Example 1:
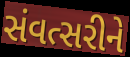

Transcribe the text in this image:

સંવત્સરીને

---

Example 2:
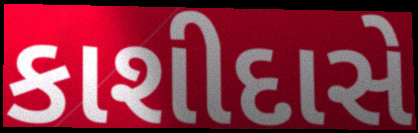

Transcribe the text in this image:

કાશીદાસે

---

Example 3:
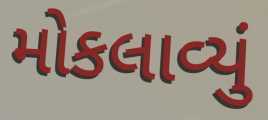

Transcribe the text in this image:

મોકલાવ્યું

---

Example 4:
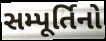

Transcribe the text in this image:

સમ્પૂર્તિનો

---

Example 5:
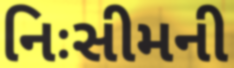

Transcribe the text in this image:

નિઃસીમની